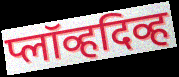
प्लॉव्हदिव्ह